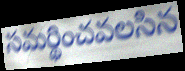
సమర్థించవలసిన